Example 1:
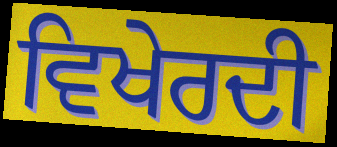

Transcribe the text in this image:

ਵਿਖੇਰਦੀ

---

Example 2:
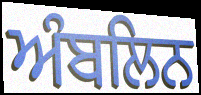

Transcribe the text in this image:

ਅੰਬਲਿਨ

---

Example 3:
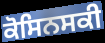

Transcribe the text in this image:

ਕੋਸਿਨਸਕੀ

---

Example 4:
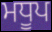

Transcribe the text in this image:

ਮਧੂਪ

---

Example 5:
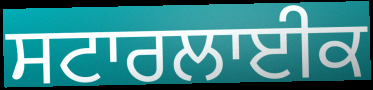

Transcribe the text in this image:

ਸਟਾਰਲਾਈਕ